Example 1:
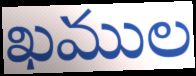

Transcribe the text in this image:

ఖముల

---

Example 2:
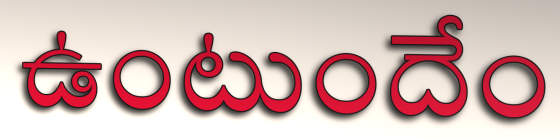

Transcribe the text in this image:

ఉంటుందేం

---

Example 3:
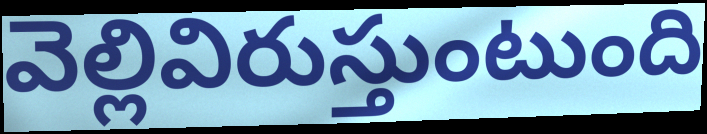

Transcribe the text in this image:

వెల్లివిరుస్తుంటుంది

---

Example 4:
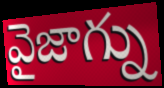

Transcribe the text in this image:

వైజాగ్ను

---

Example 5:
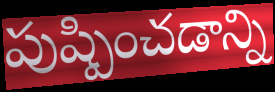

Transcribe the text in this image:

పుష్పించడాన్ని